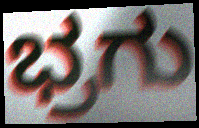
ಭ್ರಗು